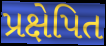
પ્રક્ષેપિત